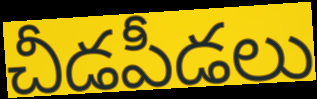
చీడపీడలు